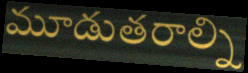
మూడుతరాల్ని